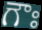
గౌః